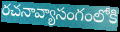
రచనావ్యాసంగంలోకి